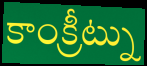
కాంక్రీట్ను